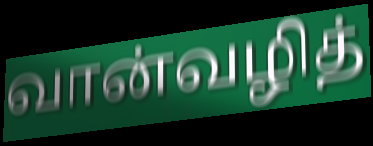
வான்வழித்